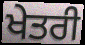
ਖੇਤਰੀ